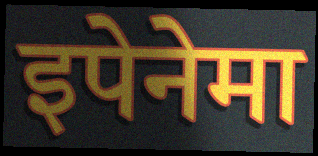
इपेनेमा